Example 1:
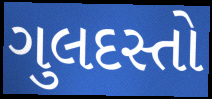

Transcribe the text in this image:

ગુલદસ્તો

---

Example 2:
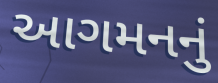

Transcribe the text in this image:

આગમનનું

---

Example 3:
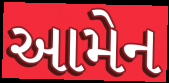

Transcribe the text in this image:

આમેન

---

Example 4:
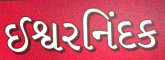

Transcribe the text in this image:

ઈશ્વરનિંદક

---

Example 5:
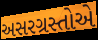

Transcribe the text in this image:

અસરગ્રસ્તોએ